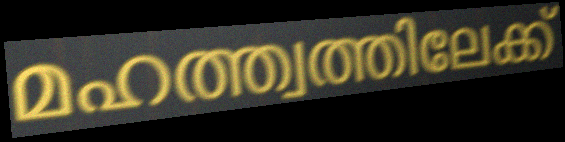
മഹത്ത്വത്തിലേക്ക്